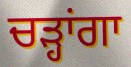
ਚੜ੍ਹਾਂਗਾ